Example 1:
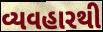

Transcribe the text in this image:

વ્યવહારથી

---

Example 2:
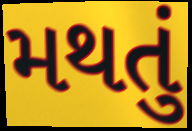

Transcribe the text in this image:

મથતું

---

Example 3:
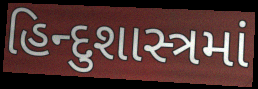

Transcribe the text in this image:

હિન્દુશાસ્ત્રમાં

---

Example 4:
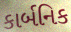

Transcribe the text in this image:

કાર્બનિક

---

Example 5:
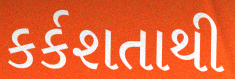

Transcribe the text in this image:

કર્કશતાથી